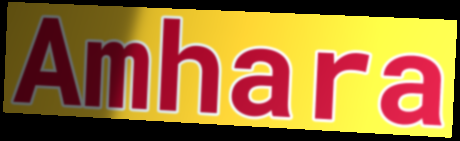
Amhara